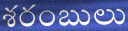
శరంబులు